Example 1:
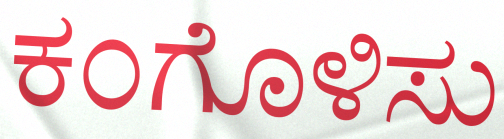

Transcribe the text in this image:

ಕಂಗೊಳಿಸು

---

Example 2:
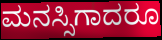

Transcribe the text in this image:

ಮನಸ್ಸಿಗಾದರೂ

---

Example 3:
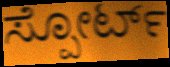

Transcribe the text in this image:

ಸ್ಪೋರ್ಟ್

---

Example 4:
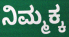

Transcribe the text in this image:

ನಿಮ್ಮಕ್ಕ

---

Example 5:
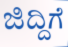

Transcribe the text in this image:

ಜಿದ್ದಿಗೆ